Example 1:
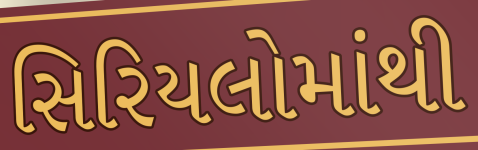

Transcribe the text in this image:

સિરિયલોમાંથી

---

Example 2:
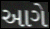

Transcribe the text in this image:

આગે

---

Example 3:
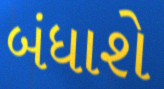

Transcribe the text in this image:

બંધાશે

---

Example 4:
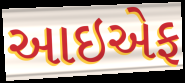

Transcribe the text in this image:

આઇએફ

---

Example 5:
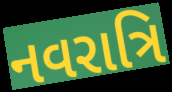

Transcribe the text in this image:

નવરાત્રિ